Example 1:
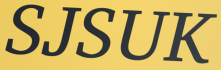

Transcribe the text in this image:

SJSUK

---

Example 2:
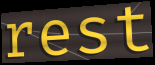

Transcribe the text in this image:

rest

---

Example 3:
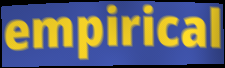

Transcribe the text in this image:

empirical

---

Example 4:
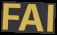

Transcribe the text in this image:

FAI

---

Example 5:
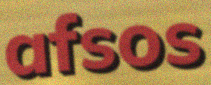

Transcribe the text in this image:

afsos